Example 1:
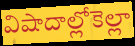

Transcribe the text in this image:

విషాదాల్లోకెల్లా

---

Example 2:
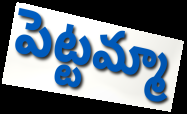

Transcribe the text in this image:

పెట్టమ్మా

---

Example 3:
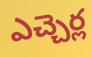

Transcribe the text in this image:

ఎచ్చెర్ల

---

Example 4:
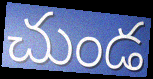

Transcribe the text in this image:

చుండ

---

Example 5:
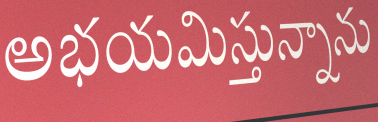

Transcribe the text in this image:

అభయమిస్తున్నాను